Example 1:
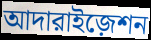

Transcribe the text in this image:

আদারাইজ়েশন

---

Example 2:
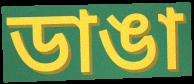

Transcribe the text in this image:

ডাঙা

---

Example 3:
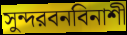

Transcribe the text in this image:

সুন্দরবনবিনাশী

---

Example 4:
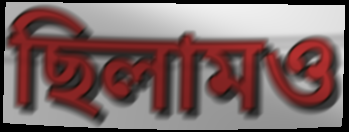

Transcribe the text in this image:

ছিলামও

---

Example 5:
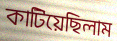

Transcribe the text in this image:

কাটিয়েছিলাম